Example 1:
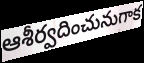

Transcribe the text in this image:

ఆశీర్వదించునుగాక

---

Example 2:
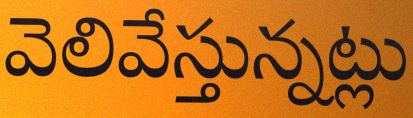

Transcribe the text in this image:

వెలివేస్తున్నట్లు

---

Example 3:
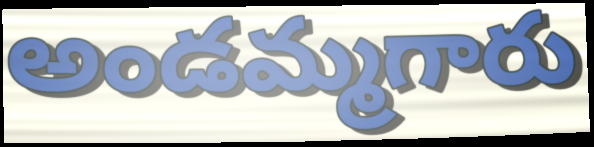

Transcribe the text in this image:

అండమ్మగారు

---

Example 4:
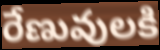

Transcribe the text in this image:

రేణువులకి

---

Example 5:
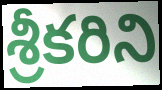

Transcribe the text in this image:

శ్రీకరిని